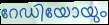
റേഡിയോയും